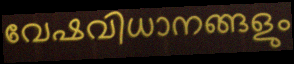
വേഷവിധാനങ്ങളും